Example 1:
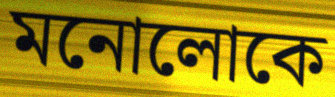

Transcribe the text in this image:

মনোলোকে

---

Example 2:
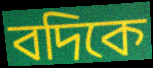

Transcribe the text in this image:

বদিকে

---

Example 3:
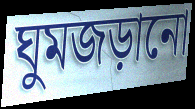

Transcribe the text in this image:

ঘুমজড়ানো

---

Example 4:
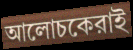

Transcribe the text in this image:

আলোচকেরাই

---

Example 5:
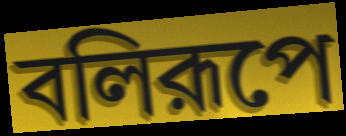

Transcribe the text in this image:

বলিরূপে